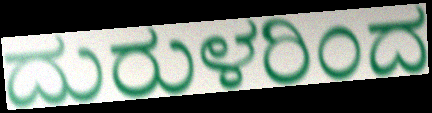
ದುರುಳರಿಂದ